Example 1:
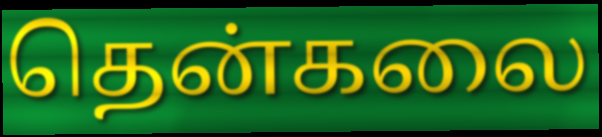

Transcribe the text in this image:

தென்கலை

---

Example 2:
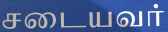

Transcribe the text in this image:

சடையவர்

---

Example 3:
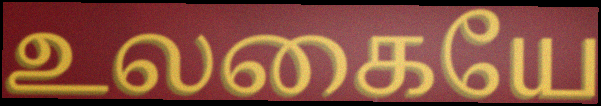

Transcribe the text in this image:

உலகையே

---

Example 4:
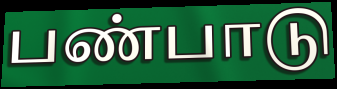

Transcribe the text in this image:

பண்பாடு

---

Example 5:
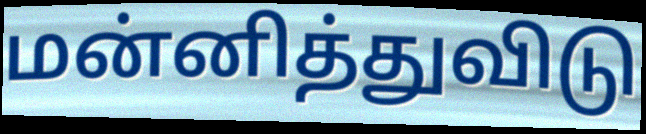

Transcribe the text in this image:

மன்னித்துவிடு